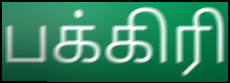
பக்கிரி